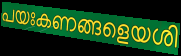
പയഃകണങ്ങളെയശി